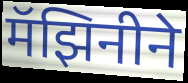
मॅझिनीने